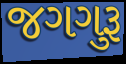
જગગુરૂ